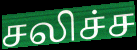
சலிச்ச